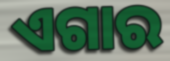
ଏଗାର